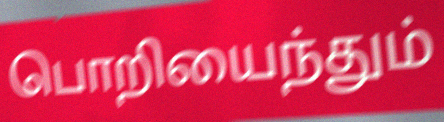
பொறியைந்தும்